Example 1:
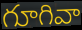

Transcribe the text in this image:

గూగివా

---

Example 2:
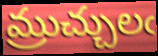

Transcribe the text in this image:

మ్రుచ్చులఁ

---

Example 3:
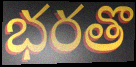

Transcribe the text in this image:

భరతొ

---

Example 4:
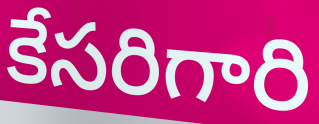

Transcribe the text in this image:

కేసరిగారి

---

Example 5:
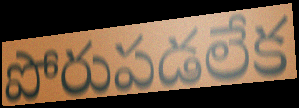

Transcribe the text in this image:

పోరుపడలేక